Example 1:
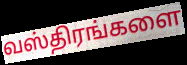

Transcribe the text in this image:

வஸ்திரங்களை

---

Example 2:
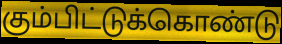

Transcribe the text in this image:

கும்பிட்டுக்கொண்டு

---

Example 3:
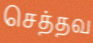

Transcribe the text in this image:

செத்தவ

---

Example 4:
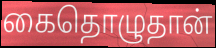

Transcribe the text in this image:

கைதொழுதான்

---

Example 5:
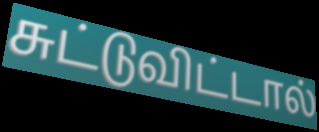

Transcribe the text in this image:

சுட்டுவிட்டால்